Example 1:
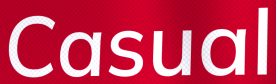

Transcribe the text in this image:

Casual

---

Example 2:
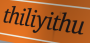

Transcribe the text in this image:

thiliyithu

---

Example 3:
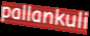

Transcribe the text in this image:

pallankuli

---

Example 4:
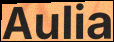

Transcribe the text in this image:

Aulia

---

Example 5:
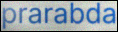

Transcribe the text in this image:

prarabda